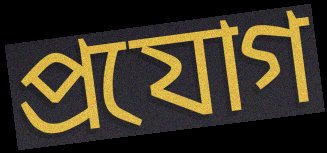
প্ৰযোগ